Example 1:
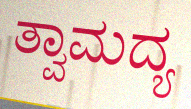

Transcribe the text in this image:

ತ್ವಾಮದ್ಯ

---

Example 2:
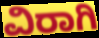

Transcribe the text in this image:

ವಿರಾಗಿ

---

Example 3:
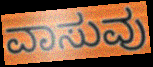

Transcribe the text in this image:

ವಾಸುವು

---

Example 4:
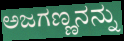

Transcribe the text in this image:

ಅಜಗಣ್ಣನನ್ನು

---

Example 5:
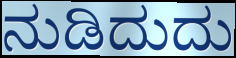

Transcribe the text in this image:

ನುಡಿದುದು